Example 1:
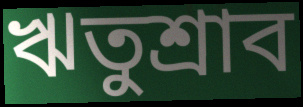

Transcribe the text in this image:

ঋতুশ্রাব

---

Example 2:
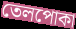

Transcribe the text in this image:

তেলপোকা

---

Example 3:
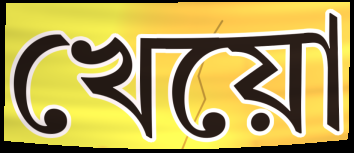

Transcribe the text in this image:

খেয়ো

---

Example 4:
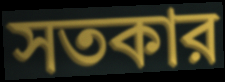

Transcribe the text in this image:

সতকার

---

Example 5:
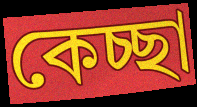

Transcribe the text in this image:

কেচ্ছা